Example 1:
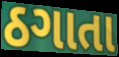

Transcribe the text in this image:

ઠગાતા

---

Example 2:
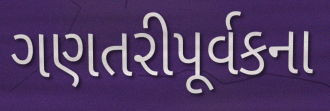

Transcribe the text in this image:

ગણતરીપૂર્વકના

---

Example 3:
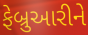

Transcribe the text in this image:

ફેબ્રુઆરીને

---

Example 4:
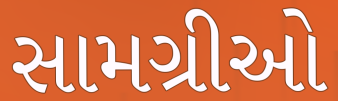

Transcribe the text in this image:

સામગ્રીઓ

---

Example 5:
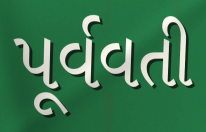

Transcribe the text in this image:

પૂર્વવતી